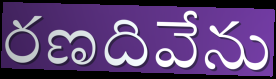
రణదివేను